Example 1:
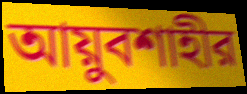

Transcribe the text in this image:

আয়ুবশাহীর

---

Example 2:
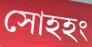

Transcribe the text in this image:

সোহহং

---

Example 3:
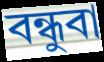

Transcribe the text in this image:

বন্ধুবা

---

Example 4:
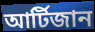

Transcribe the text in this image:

আর্টিজান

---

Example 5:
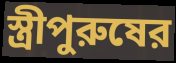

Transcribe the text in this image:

স্ত্রীপুরুষের